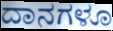
ದಾನಗಳೂ